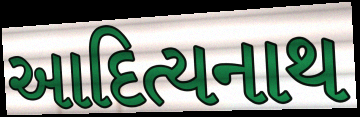
આદિત્યનાથ